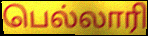
பெல்லாரி